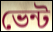
ভেন্ট